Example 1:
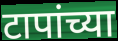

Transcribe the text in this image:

टापांच्या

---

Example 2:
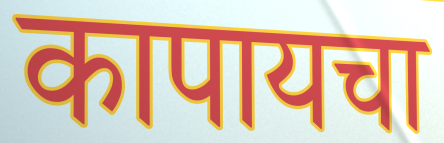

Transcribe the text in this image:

कापायचा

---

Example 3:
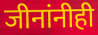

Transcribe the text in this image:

जीनांनीही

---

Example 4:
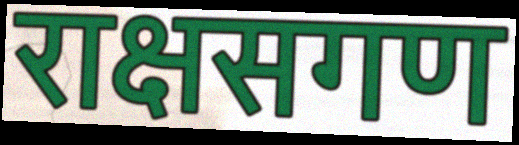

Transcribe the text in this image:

राक्षसगण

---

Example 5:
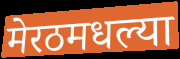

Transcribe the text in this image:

मेरठमधल्या